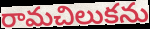
రామచిలుకను